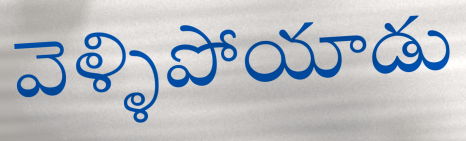
వెళ్ళిపోయాడు